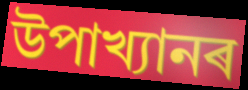
উপাখ্যানৰ